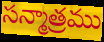
సన్మాత్రము